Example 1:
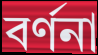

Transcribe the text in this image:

বর্ণনা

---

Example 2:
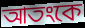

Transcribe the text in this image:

আতংকে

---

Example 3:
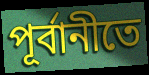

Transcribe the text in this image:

পূর্বানীতে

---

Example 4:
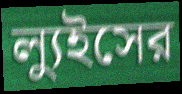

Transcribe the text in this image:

ল্যুইসের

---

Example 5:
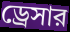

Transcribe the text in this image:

ড্রেসার